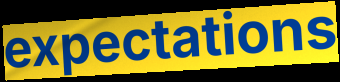
expectations